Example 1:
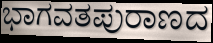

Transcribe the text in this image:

ಭಾಗವತಪುರಾಣದ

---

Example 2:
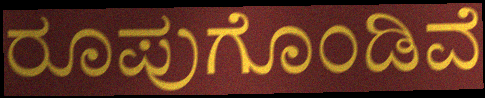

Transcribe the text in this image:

ರೂಪುಗೊಂಡಿವೆ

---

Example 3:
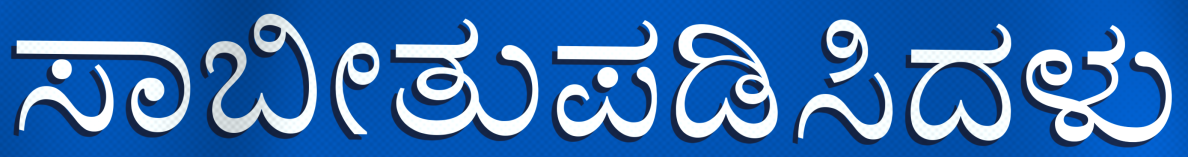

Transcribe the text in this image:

ಸಾಬೀತುಪಡಿಸಿದಳು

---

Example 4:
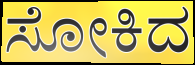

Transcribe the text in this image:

ಸೋಕಿದ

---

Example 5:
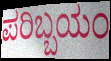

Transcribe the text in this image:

ಪರಿಬ್ಬಯಂ